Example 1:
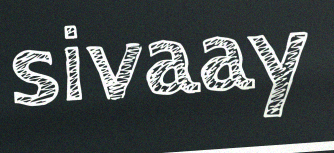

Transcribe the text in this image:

sivaay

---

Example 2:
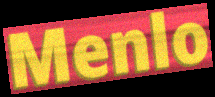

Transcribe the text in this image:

Menlo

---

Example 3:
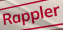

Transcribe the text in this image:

Rappler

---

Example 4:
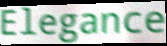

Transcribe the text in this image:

Elegance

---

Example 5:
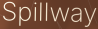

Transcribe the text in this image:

Spillway